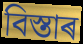
বিস্তাৰ